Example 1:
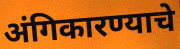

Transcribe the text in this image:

अंगिकारण्याचे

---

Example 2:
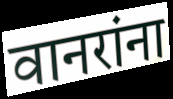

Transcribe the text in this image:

वानरांना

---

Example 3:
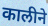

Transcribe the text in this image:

कालीने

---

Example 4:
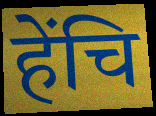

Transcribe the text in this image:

हेंचि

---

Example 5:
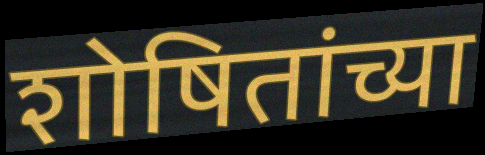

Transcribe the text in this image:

शोषितांच्या